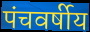
पंचवर्षीय